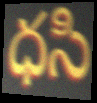
ధసి